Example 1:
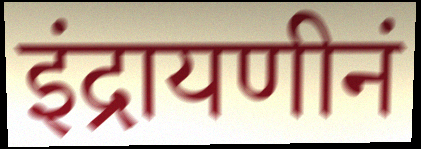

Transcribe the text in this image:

इंद्रायणीनं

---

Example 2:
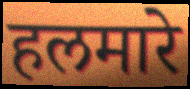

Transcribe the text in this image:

हलमारे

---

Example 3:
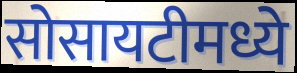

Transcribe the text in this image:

सोसायटीमध्ये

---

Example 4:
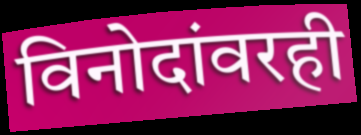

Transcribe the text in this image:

विनोदांवरही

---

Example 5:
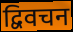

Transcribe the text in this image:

द्विवचन